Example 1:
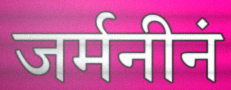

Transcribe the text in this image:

जर्मनीनं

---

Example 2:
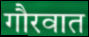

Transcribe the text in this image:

गौरवात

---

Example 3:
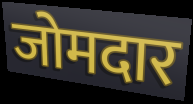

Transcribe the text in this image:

जोमदार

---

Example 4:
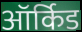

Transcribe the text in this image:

ऑर्किड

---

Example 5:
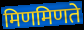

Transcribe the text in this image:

मिणमिणते